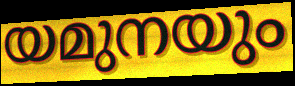
യമുനയും